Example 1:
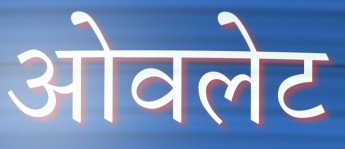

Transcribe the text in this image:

ओवलेट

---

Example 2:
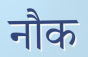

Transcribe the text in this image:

नौक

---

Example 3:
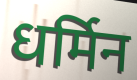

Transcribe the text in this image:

धर्मिन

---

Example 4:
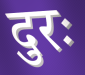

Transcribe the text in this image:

दुरः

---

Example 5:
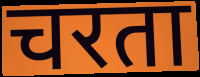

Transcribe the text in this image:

चरता